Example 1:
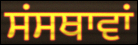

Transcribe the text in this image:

ਸਂਸਥਾਵਾਂ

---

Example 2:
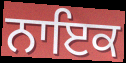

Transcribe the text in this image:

ਨਾਇਕ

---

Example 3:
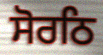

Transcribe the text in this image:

ਸੋਰਠਿ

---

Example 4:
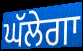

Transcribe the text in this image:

ਘੱਲੇਗਾ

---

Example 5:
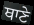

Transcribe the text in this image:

ਥਾਣੇ